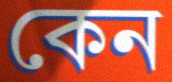
কেন